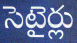
సెటైర్లు